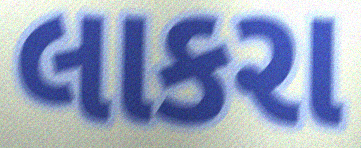
લાકરા